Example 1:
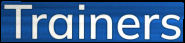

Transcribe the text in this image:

Trainers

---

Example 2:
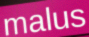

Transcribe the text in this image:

malus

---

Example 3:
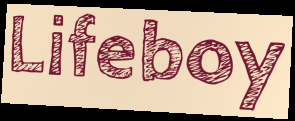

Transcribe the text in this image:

Lifeboy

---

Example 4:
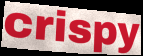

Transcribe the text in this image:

crispy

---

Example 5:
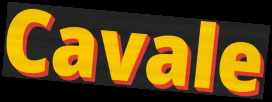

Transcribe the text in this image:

Cavale